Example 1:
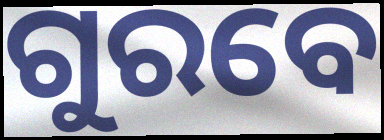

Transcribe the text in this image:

ଗୁରବେ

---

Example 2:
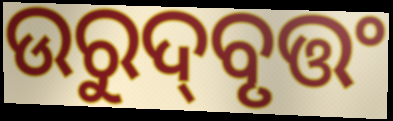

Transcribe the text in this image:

ଉରୁଦ୍‌ବୃତ୍ତଂ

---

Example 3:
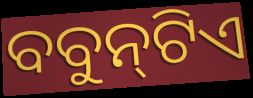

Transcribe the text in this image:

ବବୁନ୍‍ଟିଏ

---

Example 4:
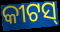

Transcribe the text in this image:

କୀଟସ୍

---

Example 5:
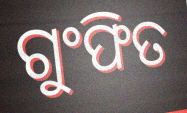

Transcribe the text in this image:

ଗୁଂଫିତ